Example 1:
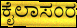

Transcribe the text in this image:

ಕೈಲಾಸಂರ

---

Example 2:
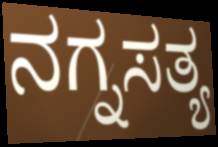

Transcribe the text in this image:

ನಗ್ನಸತ್ಯ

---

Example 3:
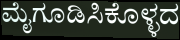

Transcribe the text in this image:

ಮೈಗೂಡಿಸಿಕೊಳ್ಳದ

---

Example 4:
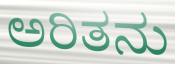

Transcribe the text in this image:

ಅರಿತನು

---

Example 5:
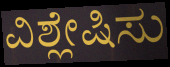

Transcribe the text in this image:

ವಿಶ್ಲೇಷಿಸು